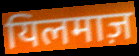
यिलमाज़